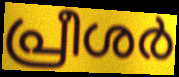
പ്രീശർ